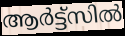
ആർട്ട്സിൽ